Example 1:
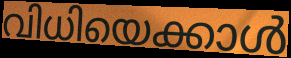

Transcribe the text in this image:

വിധിയെക്കാൾ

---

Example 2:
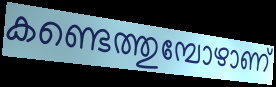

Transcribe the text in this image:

കണ്ടെത്തുമ്പോഴാണ്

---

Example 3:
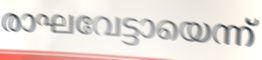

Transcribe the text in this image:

രാഘവേട്ടായെന്ന്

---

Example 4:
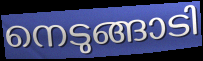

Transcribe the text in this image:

നെടുങ്ങാടി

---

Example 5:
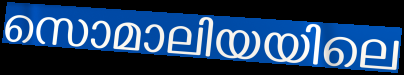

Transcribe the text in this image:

സൊമാലിയയിലെ